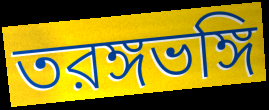
তরঙ্গভঙ্গি